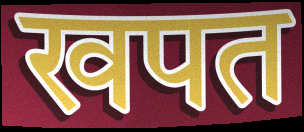
खपत